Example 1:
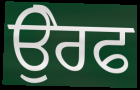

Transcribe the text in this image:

ਉੇਰਫ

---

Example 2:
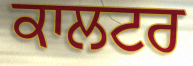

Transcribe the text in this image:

ਕਾਲਟਰ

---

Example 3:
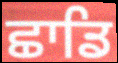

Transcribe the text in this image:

ਛਾਡਿ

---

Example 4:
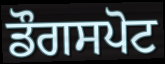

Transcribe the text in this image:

ਡੌਗਸਪੋਟ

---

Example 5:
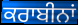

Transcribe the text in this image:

ਕਰਾਬੀਨਾਂ